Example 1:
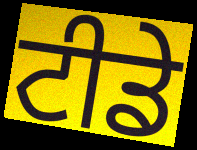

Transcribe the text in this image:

ਟੀਡੇ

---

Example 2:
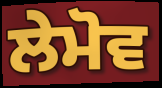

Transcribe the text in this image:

ਲੇਮੋਵ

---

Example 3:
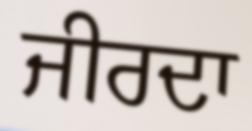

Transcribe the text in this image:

ਜੀਰਦਾ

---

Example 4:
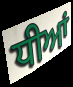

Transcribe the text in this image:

ਧੀਆਂ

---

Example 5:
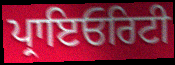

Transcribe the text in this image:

ਪ੍ਰਾਇਓਰਿਟੀ